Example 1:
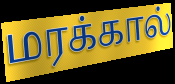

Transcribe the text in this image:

மரக்கால்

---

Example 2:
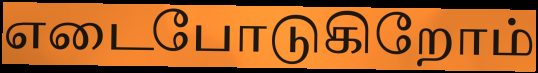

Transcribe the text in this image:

எடைபோடுகிறோம்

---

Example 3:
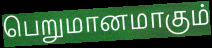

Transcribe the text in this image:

பெறுமானமாகும்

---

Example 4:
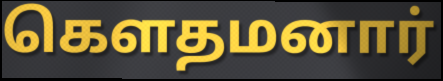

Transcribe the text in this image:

கெளதமனார்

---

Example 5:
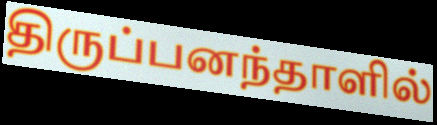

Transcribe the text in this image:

திருப்பனந்தாளில்